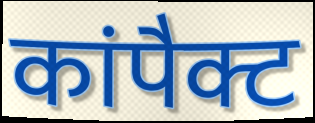
कांपैक्ट